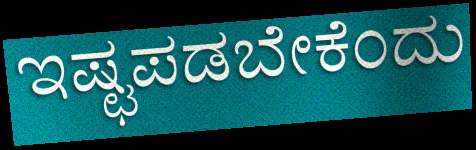
ಇಷ್ಟಪಡಬೇಕೆಂದು